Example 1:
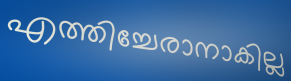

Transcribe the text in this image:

എത്തിച്ചേരാനാകില്ല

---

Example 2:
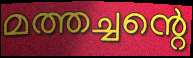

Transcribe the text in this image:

മത്തച്ചന്റെ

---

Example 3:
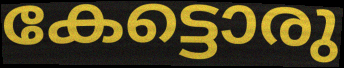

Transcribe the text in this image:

കേട്ടൊരു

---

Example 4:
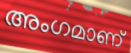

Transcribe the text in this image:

അംഗമാണ്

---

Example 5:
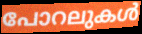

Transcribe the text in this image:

പോറലുകൾ